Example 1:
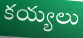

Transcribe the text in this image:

కయ్యలు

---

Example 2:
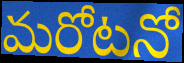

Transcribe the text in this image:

మరోటనో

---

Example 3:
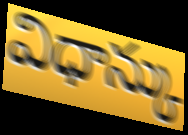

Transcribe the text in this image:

విధాన్కు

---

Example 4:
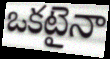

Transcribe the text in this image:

ఒకటైనా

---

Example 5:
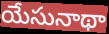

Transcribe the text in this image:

యేసునాథా